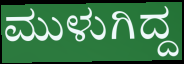
ಮುಳುಗಿದ್ದ